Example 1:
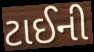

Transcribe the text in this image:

ટાઈની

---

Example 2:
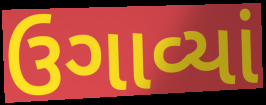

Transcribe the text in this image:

ઉગાવ્યાં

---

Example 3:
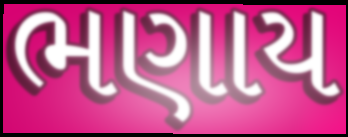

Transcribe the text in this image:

ભણાય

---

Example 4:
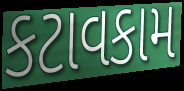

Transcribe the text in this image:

કટાવકામ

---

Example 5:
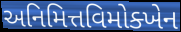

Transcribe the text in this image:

અનિમિત્તવિમોક્ખેન